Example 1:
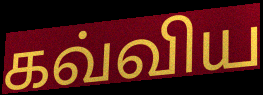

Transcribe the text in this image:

கவ்விய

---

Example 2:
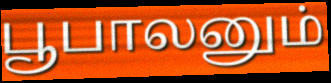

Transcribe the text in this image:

பூபாலனும்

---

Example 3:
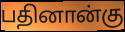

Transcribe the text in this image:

பதினான்கு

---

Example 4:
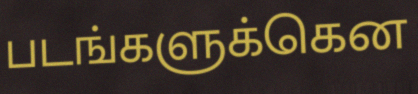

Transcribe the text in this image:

படங்களுக்கென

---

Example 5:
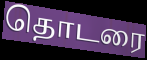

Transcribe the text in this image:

தொடரை